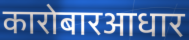
कारोबारआधार